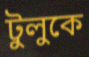
টুলুকে